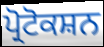
ਪ੍ਰੋਟੋਕਸ਼ਨ